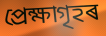
প্ৰেক্ষাগৃহৰ